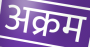
अक्रम